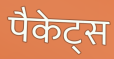
पैकेट्स